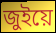
জুইয়ে